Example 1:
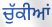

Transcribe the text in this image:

ਚੁੱਕੀਆਂ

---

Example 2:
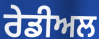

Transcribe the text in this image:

ਰੇਡੀਅਲ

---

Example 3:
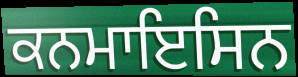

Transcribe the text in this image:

ਕਨਮਾਇਸਿਨ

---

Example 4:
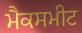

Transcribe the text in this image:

ਮੈਕਸਮੀਟ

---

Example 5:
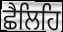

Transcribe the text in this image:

ਛੈਲਿਹਿ